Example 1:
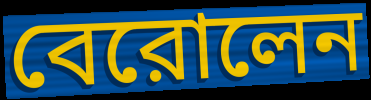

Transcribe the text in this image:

বেরোলেন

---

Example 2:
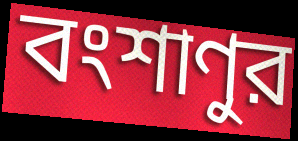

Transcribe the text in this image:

বংশাণুর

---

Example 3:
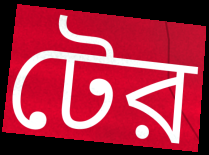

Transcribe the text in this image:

টের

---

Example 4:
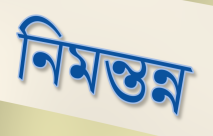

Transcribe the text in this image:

নিমন্তন্ন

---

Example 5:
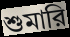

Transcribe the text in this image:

শুমারি